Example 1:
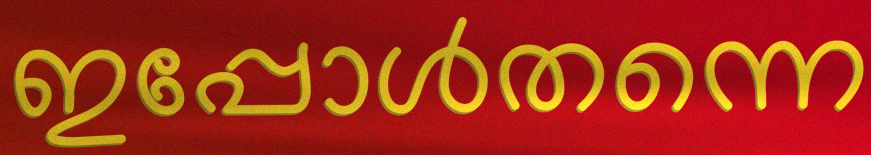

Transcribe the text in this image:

ഇപ്പോൾതന്നെ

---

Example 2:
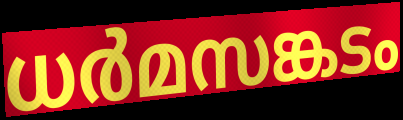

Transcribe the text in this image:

ധർമസങ്കടം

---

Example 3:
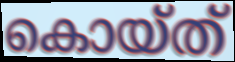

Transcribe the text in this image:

കൊയ്ത്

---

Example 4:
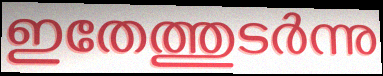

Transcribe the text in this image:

ഇതേത്തുടർന്നു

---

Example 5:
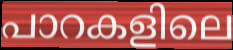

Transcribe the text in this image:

പാറകളിലെ